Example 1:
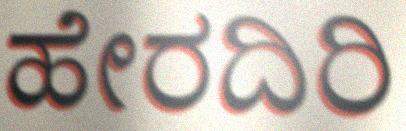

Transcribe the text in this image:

ಹೇರದಿರಿ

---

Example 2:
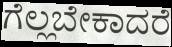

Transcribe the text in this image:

ಗೆಲ್ಲಬೇಕಾದರೆ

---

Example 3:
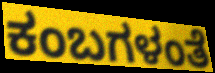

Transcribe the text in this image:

ಕಂಬಗಳಂತೆ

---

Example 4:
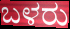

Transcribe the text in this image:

ಬಳರು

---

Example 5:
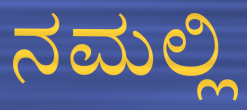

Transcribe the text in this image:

ನಮಲ್ಲಿ